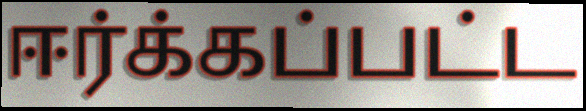
ஈர்க்கப்பட்ட